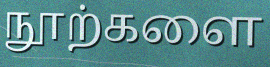
நூற்களை